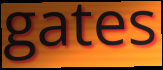
gates